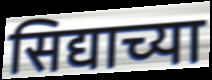
सिद्याच्या